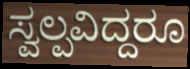
ಸ್ವಲ್ಪವಿದ್ದರೂ